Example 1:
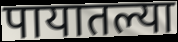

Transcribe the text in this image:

पायातल्या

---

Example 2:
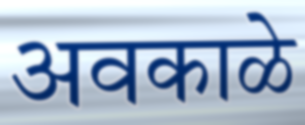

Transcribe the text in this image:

अवकाळे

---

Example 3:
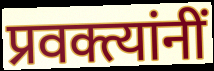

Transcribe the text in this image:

प्रवक्त्यांनीं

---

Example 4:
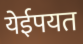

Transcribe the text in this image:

येईपयत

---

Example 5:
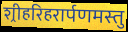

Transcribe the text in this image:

श्रीहरिहरार्पणमस्तु